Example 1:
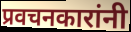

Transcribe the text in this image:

प्रवचनकारांनी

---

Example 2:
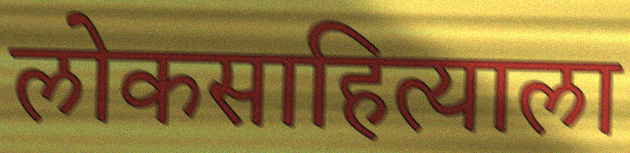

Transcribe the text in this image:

लोकसाहित्याला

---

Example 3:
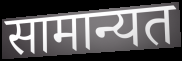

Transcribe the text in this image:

सामान्यत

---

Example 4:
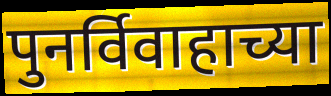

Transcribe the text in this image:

पुनर्विवाहाच्या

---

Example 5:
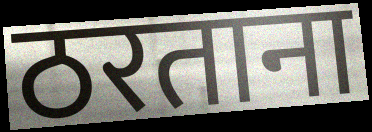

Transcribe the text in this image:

ठरताना